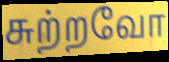
சுற்றவோ